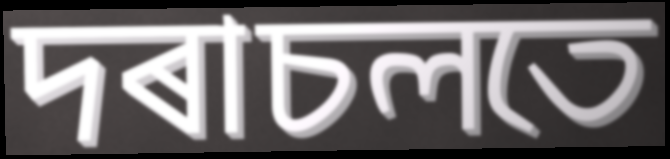
দৰাচলতে